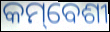
କମ୍‌ବେଶୀ